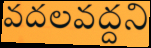
వదలవద్దని